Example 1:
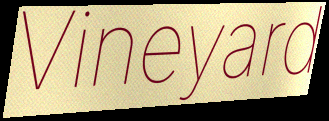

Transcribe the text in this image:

Vineyard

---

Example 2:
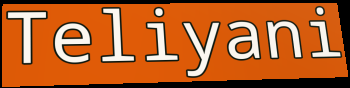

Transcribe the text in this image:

Teliyani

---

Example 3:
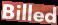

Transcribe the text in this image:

Billed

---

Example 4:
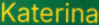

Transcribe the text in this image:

Katerina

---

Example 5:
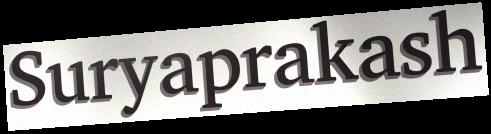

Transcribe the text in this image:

Suryaprakash